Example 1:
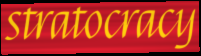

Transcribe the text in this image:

stratocracy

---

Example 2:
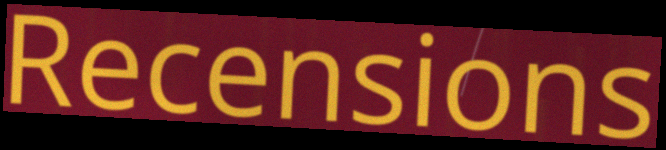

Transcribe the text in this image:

Recensions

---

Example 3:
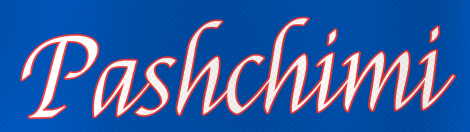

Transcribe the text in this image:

Pashchimi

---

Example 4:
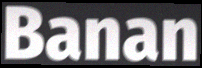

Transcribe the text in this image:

Banan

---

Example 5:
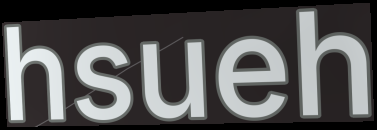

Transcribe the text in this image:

hsueh